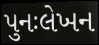
પુનઃલેખન